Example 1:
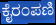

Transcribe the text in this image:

ಕೈರಂಪಣಿ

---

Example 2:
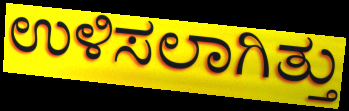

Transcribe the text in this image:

ಉಳಿಸಲಾಗಿತ್ತು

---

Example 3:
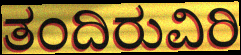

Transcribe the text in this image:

ತಂದಿರುವಿರಿ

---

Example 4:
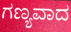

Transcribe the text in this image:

ಗಣ್ಯವಾದ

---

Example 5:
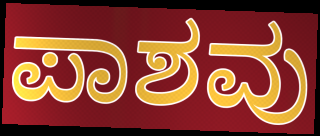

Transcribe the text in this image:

ಪಾಶವು